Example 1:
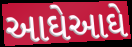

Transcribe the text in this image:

આઘેઆઘે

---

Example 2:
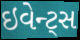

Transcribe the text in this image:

ઇવેન્ટ્સ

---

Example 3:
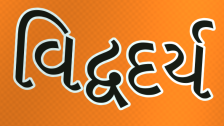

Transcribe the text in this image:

વિદ્વદર્ય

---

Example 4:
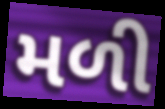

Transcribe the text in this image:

મળી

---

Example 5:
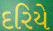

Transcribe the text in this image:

દરિયે